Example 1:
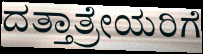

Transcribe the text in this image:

ದತ್ತಾತ್ರೇಯರಿಗೆ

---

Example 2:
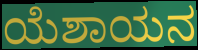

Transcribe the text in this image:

ಯೆಶಾಯನ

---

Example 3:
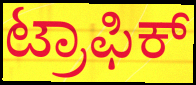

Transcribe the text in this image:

ಟ್ರಾಫಿಕ್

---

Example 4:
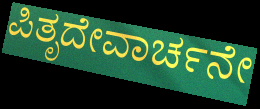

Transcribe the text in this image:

ಪಿತೃದೇವಾರ್ಚನೇ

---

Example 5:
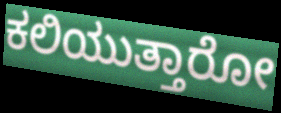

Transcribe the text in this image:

ಕಲಿಯುತ್ತಾರೋ